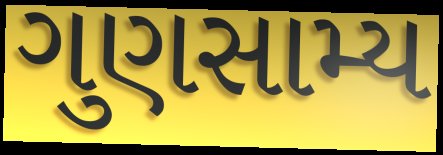
ગુણસામ્ય